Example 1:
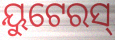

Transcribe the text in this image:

ୟୁଟେରସ୍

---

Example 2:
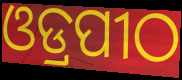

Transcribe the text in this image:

ଓଡ୍ରପୀଠ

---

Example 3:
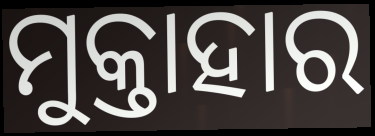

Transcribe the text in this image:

ମୁକ୍ତାହାର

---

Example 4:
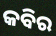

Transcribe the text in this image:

କବିର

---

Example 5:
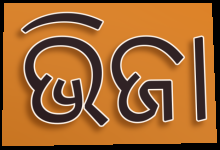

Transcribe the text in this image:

ଭିଜା